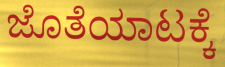
ಜೊತೆಯಾಟಕ್ಕೆ